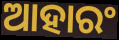
ଆହାରଂ